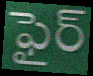
ఫైర్